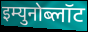
इम्युनोब्लॉट